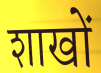
शाखों